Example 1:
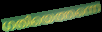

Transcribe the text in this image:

ഗതിയെത്തന്നെ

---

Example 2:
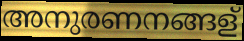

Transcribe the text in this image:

അനുരണനങ്ങള്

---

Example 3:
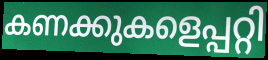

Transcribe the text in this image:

കണക്കുകളെപ്പറ്റി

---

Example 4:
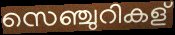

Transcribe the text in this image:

സെഞ്ചുറികള്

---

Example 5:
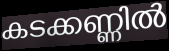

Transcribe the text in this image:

കടക്കണ്ണിൽ